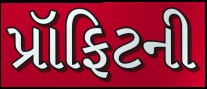
પ્રૉફિટની